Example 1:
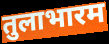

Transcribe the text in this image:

तुलाभारम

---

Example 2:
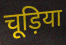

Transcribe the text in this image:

चूड़िया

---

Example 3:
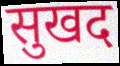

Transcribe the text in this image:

सुखद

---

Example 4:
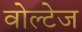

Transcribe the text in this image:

वोल्टेज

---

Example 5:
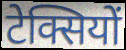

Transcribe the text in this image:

टेक्सियों